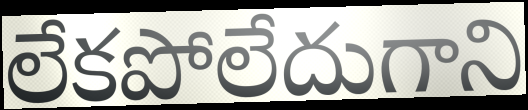
లేకపోలేదుగాని